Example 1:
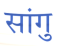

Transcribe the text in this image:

सांगु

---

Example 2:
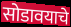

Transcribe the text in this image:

सोडावयाचे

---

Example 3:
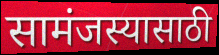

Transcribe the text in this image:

सामंजस्यासाठी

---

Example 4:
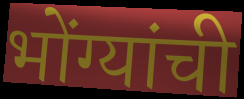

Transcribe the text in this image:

भोंग्यांची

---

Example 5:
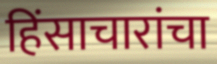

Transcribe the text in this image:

हिंसाचारांचा